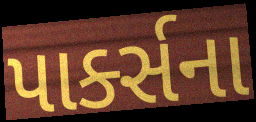
પાર્ક્સના